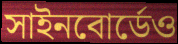
সাইনবোর্ডেও